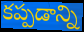
కప్పడాన్ని